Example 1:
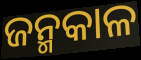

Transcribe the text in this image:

ଜନ୍ମକାଳ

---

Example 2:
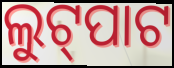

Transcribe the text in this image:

ଲୁଟ୍‍ପାଟ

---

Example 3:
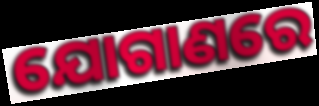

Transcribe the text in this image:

ଯୋଗାଣରେ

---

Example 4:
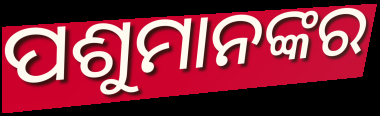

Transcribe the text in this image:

ପଶୁମାନଙ୍କର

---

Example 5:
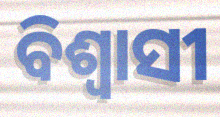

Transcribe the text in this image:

ବିଶ୍ୱାସୀ